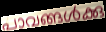
പാവങ്ങൾക്കു